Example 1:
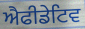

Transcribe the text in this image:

ਐਫੀਡੇਟਿਵ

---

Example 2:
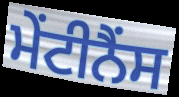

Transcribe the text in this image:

ਮੇਂਟੀਨੈਂਸ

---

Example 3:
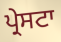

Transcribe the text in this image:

ਪ੍ਰੇਸਟਾ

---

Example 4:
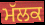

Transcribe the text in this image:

ਮੱਲਕ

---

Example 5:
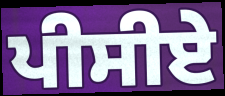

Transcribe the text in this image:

ਪੀਸੀਏ